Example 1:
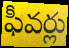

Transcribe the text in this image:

ఫీవర్లు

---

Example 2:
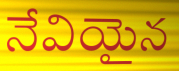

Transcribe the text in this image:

నేవియైన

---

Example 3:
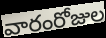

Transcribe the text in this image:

వారంరోజుల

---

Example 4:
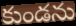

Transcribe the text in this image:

కుండను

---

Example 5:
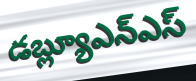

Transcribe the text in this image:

డబ్ల్యూఎన్ఎస్